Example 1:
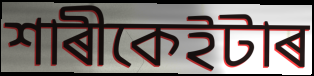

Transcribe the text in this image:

শাৰীকেইটাৰ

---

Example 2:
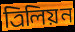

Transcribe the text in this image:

ত্ৰিলিয়ন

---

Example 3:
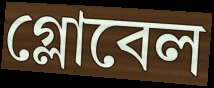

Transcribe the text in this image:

গ্লোবেল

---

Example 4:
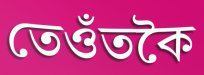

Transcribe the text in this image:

তেওঁতকৈ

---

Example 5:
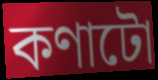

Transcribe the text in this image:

কণাটো